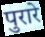
पुरारे